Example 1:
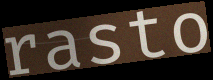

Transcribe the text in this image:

rasto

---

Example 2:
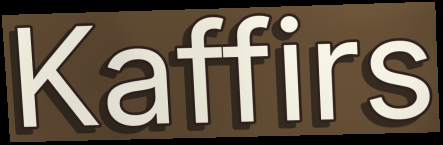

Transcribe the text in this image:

Kaffirs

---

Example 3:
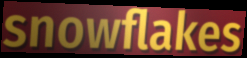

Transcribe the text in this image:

snowflakes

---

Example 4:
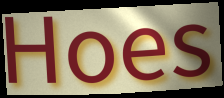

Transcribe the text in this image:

Hoes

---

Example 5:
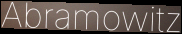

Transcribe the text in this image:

Abramowitz